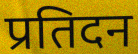
प्रतिदन